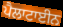
ਪੈਲਾਟਾਈਨ